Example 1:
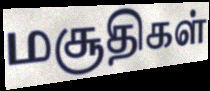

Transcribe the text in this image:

மசூதிகள்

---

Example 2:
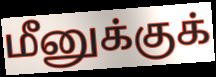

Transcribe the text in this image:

மீனுக்குக்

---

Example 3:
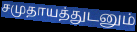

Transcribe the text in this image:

சமுதாயத்துடனும்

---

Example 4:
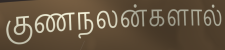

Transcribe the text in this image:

குணநலன்களால்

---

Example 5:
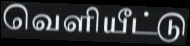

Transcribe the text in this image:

வெளியீட்டு